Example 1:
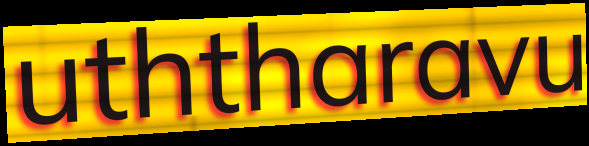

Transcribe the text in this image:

uththaravu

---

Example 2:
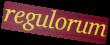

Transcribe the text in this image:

regulorum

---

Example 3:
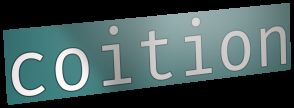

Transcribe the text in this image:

coition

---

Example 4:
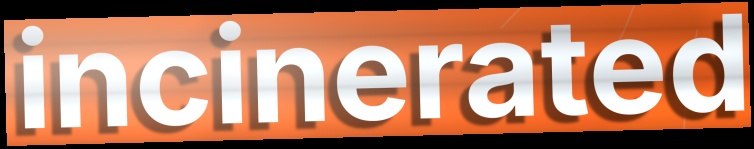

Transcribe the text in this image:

incinerated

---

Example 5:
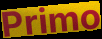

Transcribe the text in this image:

Primo